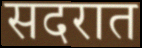
सदरात